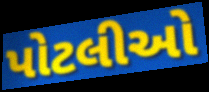
પોટલીઓ